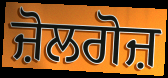
ਜ਼ੋਲਗੋਜ਼